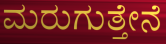
ಮರುಗುತ್ತೇನೆ